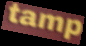
tamp